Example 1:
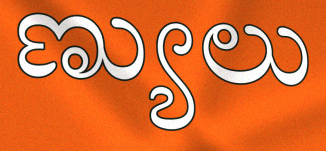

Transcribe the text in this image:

ణ్యులు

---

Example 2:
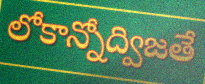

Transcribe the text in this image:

లోకాన్నోద్విజతే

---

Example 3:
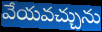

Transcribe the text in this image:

వేయవచ్చును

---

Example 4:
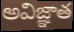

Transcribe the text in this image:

అవిజ్ఞాత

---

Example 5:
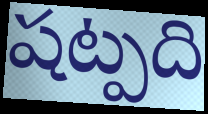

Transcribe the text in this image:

షట్పది